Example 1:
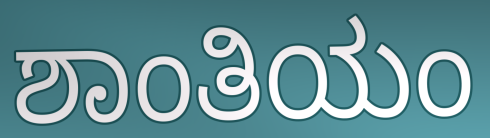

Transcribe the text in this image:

ಶಾಂತಿಯಂ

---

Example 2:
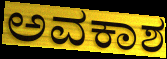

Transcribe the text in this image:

ಅವಕಾಶ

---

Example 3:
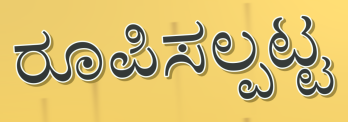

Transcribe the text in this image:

ರೂಪಿಸಲ್ಪಟ್ಟ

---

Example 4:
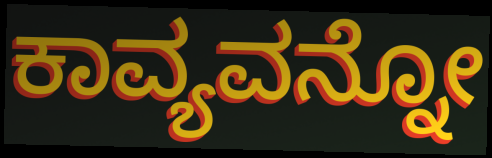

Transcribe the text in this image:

ಕಾವ್ಯವನ್ನೋ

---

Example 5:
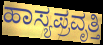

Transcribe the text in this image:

ಹಾಸ್ಯಪ್ರವೃತ್ತಿ